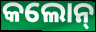
କଲୋନ୍